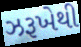
ઝરૂખેથી